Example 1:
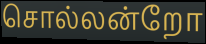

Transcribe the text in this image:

சொல்லன்றோ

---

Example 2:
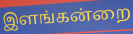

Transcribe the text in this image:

இளங்கன்றை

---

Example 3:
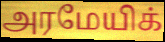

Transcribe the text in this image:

அரமேயிக்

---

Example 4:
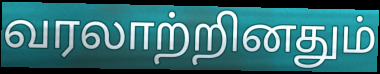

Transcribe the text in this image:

வரலாற்றினதும்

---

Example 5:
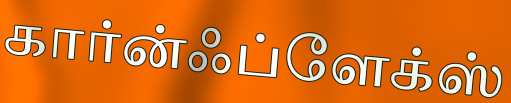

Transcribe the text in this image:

கார்ன்ஃப்ளேக்ஸ்